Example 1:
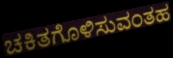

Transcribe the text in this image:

ಚಕಿತಗೊಳಿಸುವಂತಹ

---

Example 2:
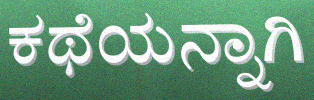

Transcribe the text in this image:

ಕಥೆಯನ್ನಾಗಿ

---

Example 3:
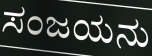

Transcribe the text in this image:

ಸಂಜಯನು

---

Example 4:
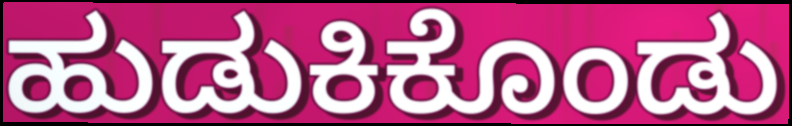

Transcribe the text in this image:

ಹುಡುಕಿಕೊಂಡು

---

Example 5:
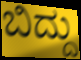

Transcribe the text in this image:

ಬಿದ್ದು